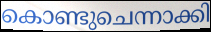
കൊണ്ടുചെന്നാക്കി